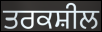
ਤਰਕਸ਼ੀਲ